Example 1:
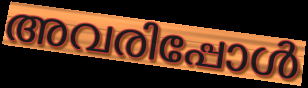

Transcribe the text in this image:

അവരിപ്പോൾ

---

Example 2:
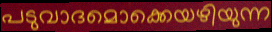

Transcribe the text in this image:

പടുവാദമൊക്കെയഴിയുന്ന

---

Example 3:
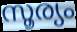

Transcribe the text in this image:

സൂര്യം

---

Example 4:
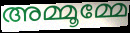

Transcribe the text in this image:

അമ്മൂമ്മേ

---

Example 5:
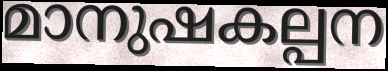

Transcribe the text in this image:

മാനുഷകല്പന